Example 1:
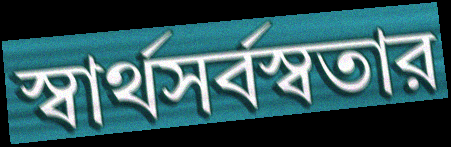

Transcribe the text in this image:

স্বার্থসর্বস্বতার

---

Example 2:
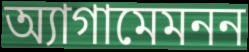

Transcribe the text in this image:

অ্যাগামেমনন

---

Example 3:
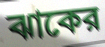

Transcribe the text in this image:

ঝাকের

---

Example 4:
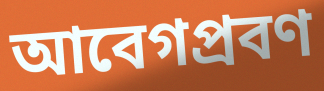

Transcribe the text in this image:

আবেগপ্রবণ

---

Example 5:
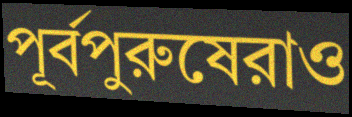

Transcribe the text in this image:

পূর্বপুরুষেরাও